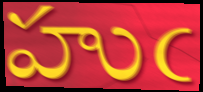
హుఁ